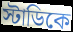
স্টাডিকে